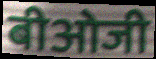
बीओजी